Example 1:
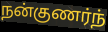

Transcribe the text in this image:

நன்குணர்ந்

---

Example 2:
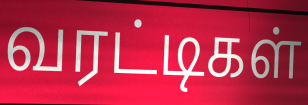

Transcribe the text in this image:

வரட்டிகள்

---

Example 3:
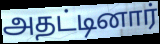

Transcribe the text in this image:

அதட்டினார்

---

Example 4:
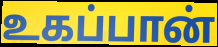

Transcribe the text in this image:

உகப்பான்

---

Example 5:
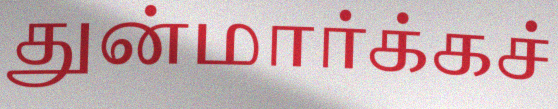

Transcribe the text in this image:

துன்மார்க்கச்